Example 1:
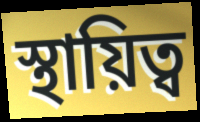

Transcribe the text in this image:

স্থায়িত্ব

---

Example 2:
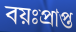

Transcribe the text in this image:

বয়ঃপ্রাপ্ত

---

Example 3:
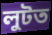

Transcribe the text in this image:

লুটত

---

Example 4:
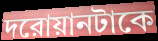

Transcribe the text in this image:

দরোয়ানটাকে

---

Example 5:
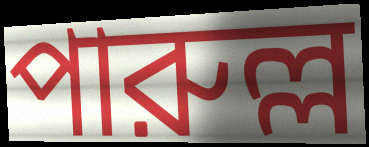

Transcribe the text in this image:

পারুল্ল